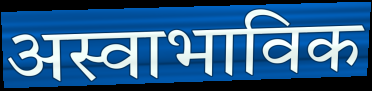
अस्वाभाविक